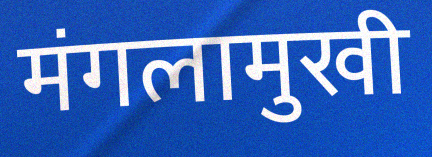
मंगलामुखी